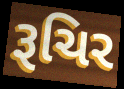
રૂચિર